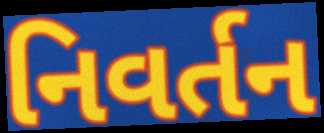
નિવર્તન